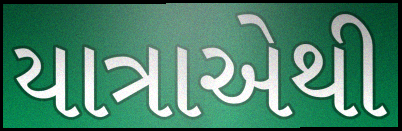
યાત્રાએથી